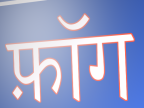
फ़ॉग